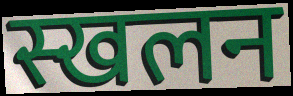
स्‍खलन